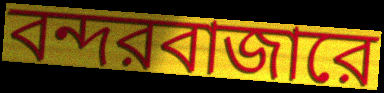
বন্দরবাজারে